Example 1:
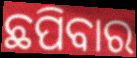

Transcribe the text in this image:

ଛପିବାର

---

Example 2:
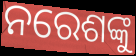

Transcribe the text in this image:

ନରେଶଙ୍କୁ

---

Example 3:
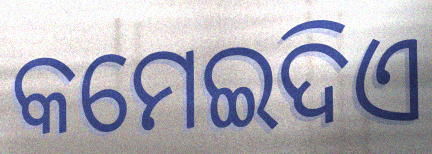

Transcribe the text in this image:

କମେଇଦିଏ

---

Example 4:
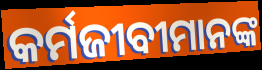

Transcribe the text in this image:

କର୍ମଜୀବୀମାନଙ୍କ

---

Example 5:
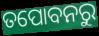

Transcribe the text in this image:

ତପୋବନରୁ